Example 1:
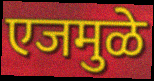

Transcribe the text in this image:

एजमुळे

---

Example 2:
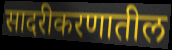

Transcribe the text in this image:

सादरीकरणातील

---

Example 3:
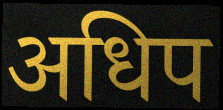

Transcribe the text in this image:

अधिप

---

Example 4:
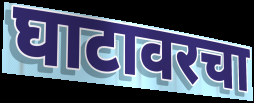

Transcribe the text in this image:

घाटावरचा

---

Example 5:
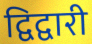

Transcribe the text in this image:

द्विद्वारी